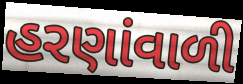
હરણાંવાળી